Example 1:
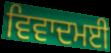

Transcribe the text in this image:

ਵਿਵਾਦਮਈ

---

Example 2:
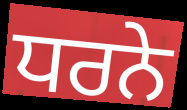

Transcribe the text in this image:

ਧਰਨੇ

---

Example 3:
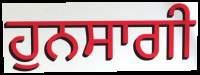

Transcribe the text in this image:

ਹੁਨਸਾਗੀ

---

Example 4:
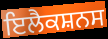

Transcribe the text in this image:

ਇਲੈਕਸ਼ਨਸ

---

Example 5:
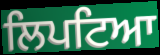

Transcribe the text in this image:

ਲਿਪਟਿਆ